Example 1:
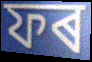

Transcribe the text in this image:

ফৰ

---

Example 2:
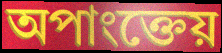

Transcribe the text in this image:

অপাংক্তেয়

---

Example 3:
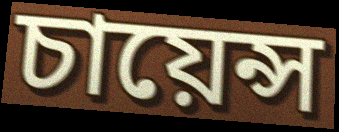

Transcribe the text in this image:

চায়েন্স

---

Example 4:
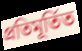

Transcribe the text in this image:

প্ৰতিমূৰ্তিত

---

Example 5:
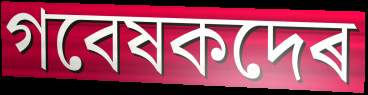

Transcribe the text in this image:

গবেষকদেৰ